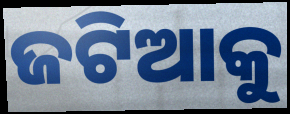
ଜଟିଆକୁ